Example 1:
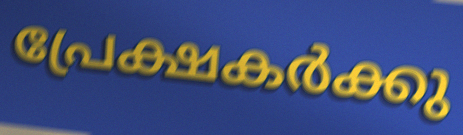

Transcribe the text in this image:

പ്രേക്ഷകർക്കു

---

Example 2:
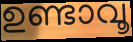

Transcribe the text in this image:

ഉണ്ടാവൂ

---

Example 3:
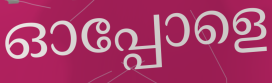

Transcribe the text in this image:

ഓപ്പോളെ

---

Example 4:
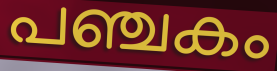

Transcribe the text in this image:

പഞ്ചകം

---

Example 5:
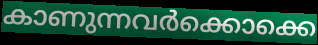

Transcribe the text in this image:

കാണുന്നവർക്കൊക്കെ